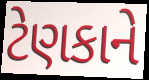
ટેણકાને